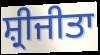
ਸ਼੍ਰੀਜੀਤਾ